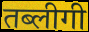
तब्‍लीगी